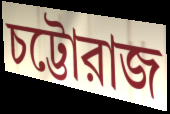
চট্টোরাজ